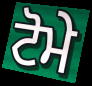
ਟੋਮੇ